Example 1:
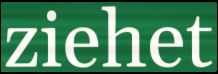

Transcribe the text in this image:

ziehet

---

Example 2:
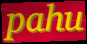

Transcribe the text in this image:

pahu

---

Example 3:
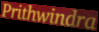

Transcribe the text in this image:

Prithwindra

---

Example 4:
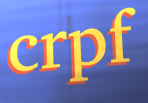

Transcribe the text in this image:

crpf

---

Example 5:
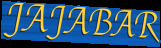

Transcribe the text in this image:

JAJABAR